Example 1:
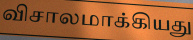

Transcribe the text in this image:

விசாலமாக்கியது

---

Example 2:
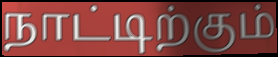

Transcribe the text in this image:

நாட்டிற்கும்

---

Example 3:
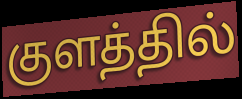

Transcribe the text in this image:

குளத்தில்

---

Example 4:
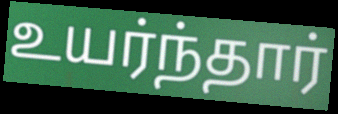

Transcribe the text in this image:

உயர்ந்தார்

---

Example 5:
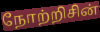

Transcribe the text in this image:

நோற்றிசின்